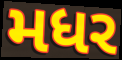
મધર